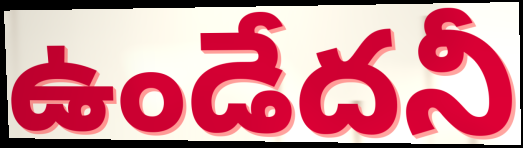
ఉండేదనీ